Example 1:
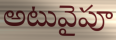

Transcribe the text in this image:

అటువైపూ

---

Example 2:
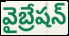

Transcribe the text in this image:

వైబ్రేషన్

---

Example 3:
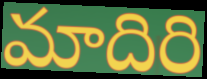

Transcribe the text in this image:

మాదిరి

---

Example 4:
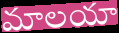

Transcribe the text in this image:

మాలయా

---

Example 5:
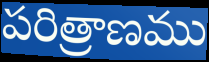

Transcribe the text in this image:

పరిత్రాణము